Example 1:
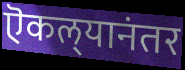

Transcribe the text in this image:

ऎकल्यानंतर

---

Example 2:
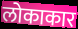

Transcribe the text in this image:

लोकाकार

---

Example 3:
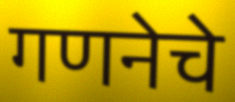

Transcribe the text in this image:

गणनेचे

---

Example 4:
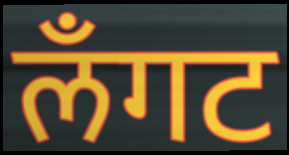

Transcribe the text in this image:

लँगट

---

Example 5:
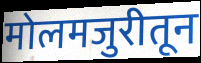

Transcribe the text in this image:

मोलमजुरीतून